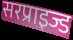
सरप्राइज्ड